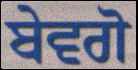
ਬੇਵਗੋ